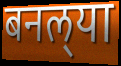
बनल्या